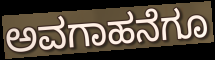
ಅವಗಾಹನೆಗೂ